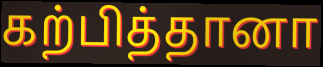
கற்பித்தானா